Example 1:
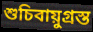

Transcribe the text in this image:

শুচিবায়ুগ্ৰস্ত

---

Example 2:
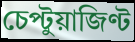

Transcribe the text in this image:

চেপ্টুয়াজিণ্ট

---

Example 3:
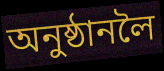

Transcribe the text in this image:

অনুষ্ঠানলৈ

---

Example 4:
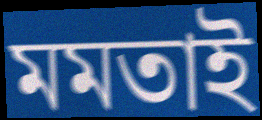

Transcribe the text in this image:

মমতাই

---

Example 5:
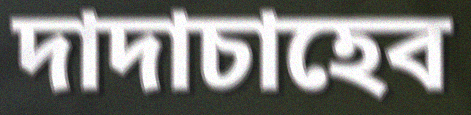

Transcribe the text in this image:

দাদাচাহেব